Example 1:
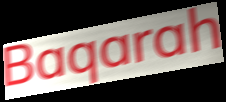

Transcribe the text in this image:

Baqarah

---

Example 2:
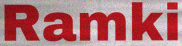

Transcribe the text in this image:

Ramki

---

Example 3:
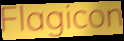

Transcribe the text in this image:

Flagicon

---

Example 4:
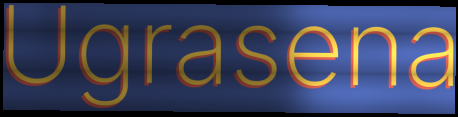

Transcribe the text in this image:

Ugrasena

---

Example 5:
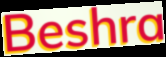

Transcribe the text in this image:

Beshra